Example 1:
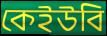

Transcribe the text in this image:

কেইউবি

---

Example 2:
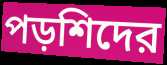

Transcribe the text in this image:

পড়শিদের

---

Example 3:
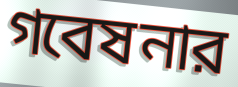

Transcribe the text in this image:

গবেষনার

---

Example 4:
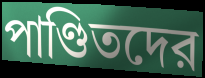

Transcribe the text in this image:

পাণ্ডিতদের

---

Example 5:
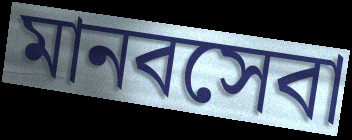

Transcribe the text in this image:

মানবসেবা